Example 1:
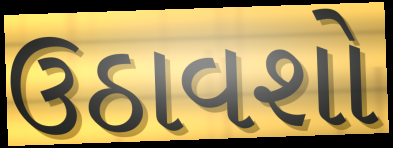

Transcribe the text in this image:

ઉઠાવશો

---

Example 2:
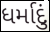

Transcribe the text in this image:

ધર્માદું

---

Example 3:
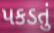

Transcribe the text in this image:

પકડતું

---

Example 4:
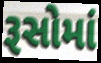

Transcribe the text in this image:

રૂસોમાં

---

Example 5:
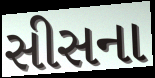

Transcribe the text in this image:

સીસના